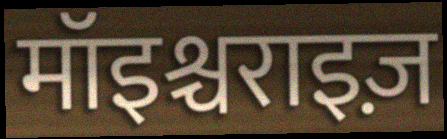
मॉइश्चराइज़